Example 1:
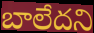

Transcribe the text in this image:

బాలేదని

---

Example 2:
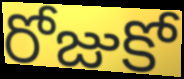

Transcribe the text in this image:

రోజుకో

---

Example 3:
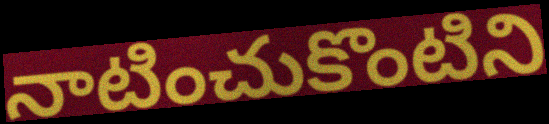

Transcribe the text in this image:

నాటించుకొంటిని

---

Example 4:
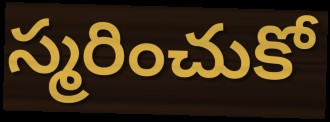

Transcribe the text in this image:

స్మరించుకో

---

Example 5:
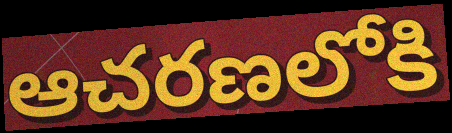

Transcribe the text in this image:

ఆచరణలోకి